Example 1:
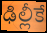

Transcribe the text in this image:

ఢిల్లీకే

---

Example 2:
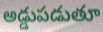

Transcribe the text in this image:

అడ్డుపడుతూ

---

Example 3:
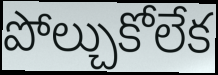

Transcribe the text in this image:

పోల్చుకోలేక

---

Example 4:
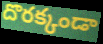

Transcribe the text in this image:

దొరక్కండా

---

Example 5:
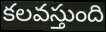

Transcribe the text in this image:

కలవస్తుంది